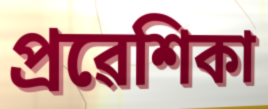
প্ৰৱেশিকা